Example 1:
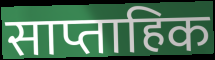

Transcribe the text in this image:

साप्‍ताहिक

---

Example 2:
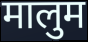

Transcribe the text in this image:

मालुम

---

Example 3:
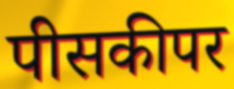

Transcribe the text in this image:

पीसकीपर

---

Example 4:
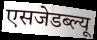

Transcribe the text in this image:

एसजेडब्ल्यू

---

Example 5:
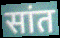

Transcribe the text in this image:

सांत